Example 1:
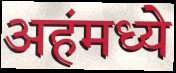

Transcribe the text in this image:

अहंमध्ये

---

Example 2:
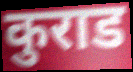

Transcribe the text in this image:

कुराड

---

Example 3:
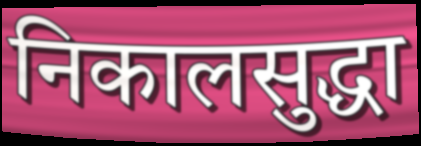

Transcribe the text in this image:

निकालसुद्धा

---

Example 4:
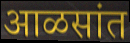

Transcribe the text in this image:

आळसांत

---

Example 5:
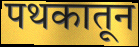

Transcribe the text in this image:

पथकातून